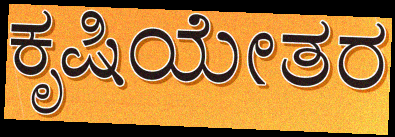
ಕೃಷಿಯೇತರ